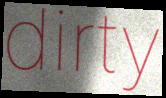
dirty